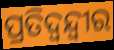
ପ୍ରତିଦ୍ବନ୍ଦ୍ବୀର